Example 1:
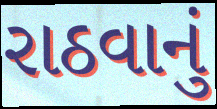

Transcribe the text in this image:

રાઠવાનું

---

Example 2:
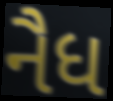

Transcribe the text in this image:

નૈધ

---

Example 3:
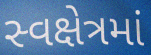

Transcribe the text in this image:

સ્વક્ષેત્રમાં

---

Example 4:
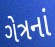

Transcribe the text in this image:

ગેત્રનાં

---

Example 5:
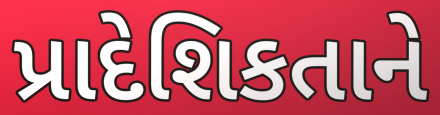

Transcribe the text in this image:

પ્રાદેશિકતાને